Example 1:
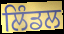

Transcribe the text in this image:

ਲਿੰਡਲ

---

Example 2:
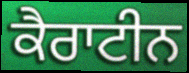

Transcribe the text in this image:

ਕੈਰਾਟੀਨ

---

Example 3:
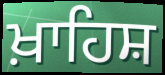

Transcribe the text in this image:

ਖ਼ਾਹਿਸ਼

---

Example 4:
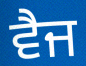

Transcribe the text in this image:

ਵੈਜ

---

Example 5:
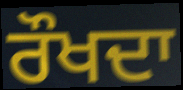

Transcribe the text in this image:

ਰੌਖਦਾ